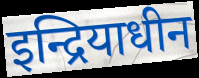
इन्द्रियाधीन